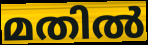
മതിൽ